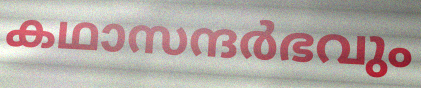
കഥാസന്ദർഭവും